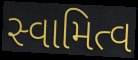
સ્વામિત્વ